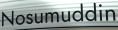
Nosumuddin